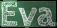
Eva